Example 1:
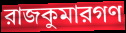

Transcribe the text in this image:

রাজকুমারগণ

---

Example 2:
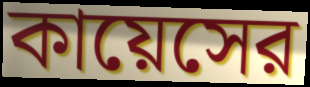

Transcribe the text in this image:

কায়েসের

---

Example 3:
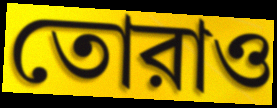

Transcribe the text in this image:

তোরাও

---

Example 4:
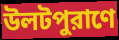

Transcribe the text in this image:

উলটপুরাণে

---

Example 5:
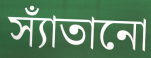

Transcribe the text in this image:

স্যাঁতানো